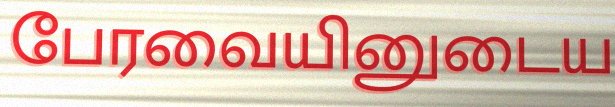
பேரவையினுடைய